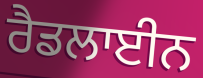
ਰੈਡਲਾਈਨ